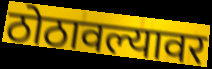
ठोठावल्यावर